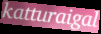
katturaigal